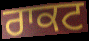
ਰਾਕਟ